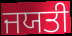
ਜਯਤੀ